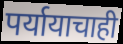
पर्यायाचाही